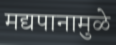
मद्यपानामुळे